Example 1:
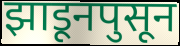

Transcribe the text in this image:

झाडूनपुसून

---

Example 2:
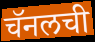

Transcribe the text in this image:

चॅनलची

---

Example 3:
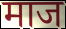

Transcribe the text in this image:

माज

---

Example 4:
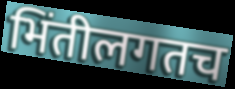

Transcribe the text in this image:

भिंतीलगतच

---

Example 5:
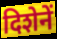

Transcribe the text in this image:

दिशेनें